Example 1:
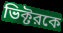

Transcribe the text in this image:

ভিক্টরকে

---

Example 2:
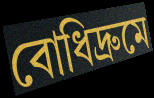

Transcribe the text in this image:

বোধিদ্রুমে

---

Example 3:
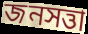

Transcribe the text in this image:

জনসত্তা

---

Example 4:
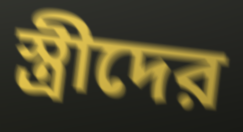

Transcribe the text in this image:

স্ত্রীদের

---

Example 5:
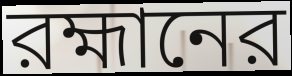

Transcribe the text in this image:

রহ্মানের